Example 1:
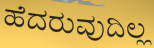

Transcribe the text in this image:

ಹೆದರುವುದಿಲ್ಲ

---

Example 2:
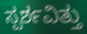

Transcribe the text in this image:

ಸ್ಪರ್ಶವಿತ್ತು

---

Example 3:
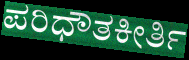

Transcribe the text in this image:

ಪರಿಧೌತಕೀರ್ತಿ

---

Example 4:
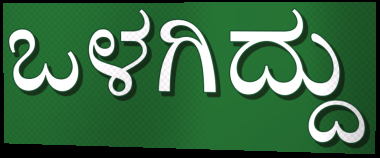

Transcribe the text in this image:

ಒಳಗಿದ್ದು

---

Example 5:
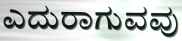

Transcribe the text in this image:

ಎದುರಾಗುವವು